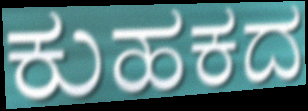
ಕುಹಕದ